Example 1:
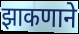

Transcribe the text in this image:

झाकणाने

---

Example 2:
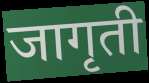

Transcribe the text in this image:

जागृती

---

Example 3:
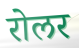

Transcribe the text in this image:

रोलर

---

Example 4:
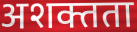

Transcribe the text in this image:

अशक्‍तता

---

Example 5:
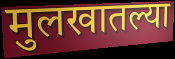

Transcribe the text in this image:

मुलखातल्या